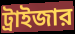
ট্রাইজার